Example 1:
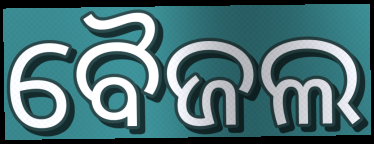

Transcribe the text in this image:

ବୈଜଲ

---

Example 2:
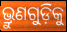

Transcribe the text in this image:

ଭ୍ରୁଣଗୁଡ଼ିକୁ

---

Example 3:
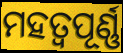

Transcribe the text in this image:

ମହତ୍ବପୂର୍ଣ୍ଣ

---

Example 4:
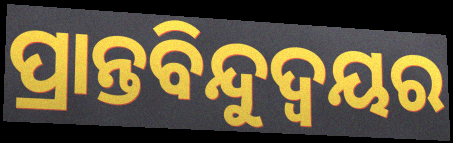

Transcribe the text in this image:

ପ୍ରାନ୍ତବିନ୍ଦୁଦ୍ଵୟର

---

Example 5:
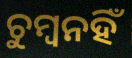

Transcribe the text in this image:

ଚୁମ୍ବନହିଁ